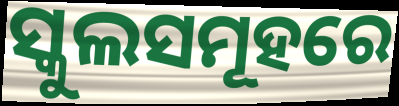
ସ୍କୁଲସମୂହରେ